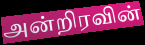
அன்றிரவின்